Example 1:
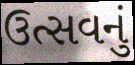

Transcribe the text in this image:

ઉત્સવનું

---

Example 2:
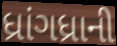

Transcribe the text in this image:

ધ્રાંગધ્રાની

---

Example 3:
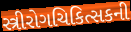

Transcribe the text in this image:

સ્ત્રીરોગચિકિત્સકની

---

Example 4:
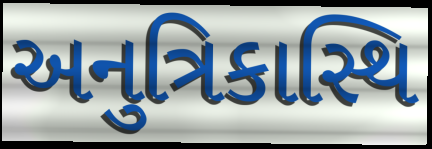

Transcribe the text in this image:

અનુત્રિકાસ્થિ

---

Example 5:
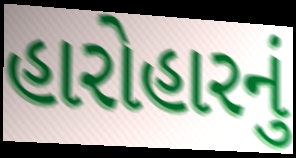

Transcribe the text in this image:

હારોહારનું